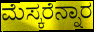
ಮೆಸ್ಕರೆನ್ನಾರ